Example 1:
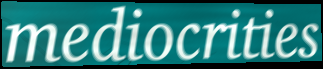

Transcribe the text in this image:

mediocrities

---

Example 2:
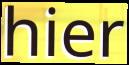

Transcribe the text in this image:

hier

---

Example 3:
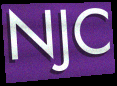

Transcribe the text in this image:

NJC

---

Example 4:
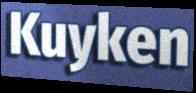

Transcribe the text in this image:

Kuyken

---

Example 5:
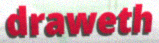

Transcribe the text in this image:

draweth